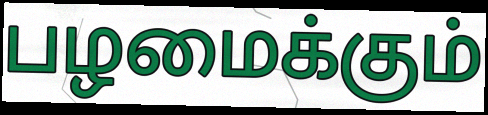
பழமைக்கும்